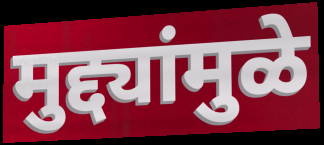
मुद्द्यांमुळे